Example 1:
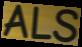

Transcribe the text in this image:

ALS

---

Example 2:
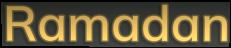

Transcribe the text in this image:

Ramadan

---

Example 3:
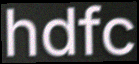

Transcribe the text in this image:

hdfc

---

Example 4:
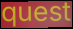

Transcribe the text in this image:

quest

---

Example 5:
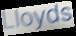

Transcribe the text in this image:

Lloyds